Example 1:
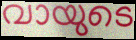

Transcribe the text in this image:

വായുടെ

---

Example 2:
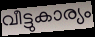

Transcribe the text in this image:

വീട്ടുകാര്യം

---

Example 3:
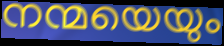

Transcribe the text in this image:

നന്മയെയും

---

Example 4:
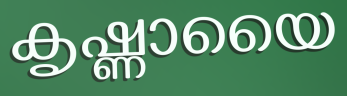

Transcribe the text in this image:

കൃഷ്ണായൈ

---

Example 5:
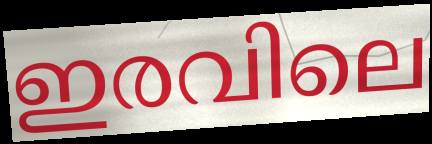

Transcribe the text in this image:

ഇരവിലെ